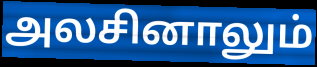
அலசினாலும்